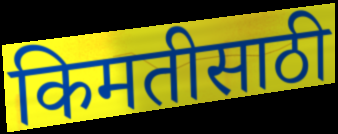
किमतीसाठी